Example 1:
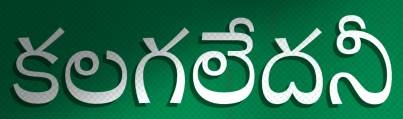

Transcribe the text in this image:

కలగలేదనీ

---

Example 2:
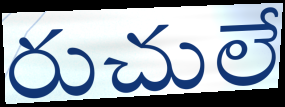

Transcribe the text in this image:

రుచులే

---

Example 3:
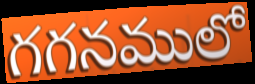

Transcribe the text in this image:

గగనములో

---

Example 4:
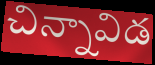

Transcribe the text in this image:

చిన్నావిడ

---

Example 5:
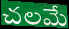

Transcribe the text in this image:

చలమే